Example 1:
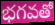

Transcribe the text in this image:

భగవతో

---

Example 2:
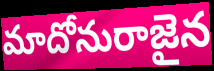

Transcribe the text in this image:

మాదోనురాజైన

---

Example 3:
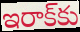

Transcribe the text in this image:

ఇరాక్‌కు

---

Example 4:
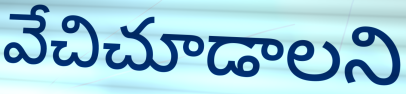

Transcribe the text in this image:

వేచిచూడాలని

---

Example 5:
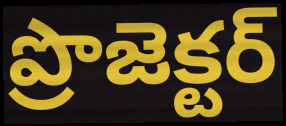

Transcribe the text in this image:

ప్రొజెక్టర్